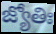
జ్యోతిః